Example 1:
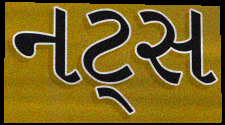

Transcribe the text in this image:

નટ્સ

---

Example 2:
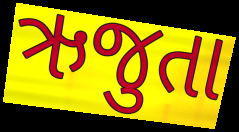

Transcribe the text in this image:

ઋજુતા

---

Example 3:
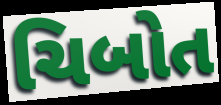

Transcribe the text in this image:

ચિબોત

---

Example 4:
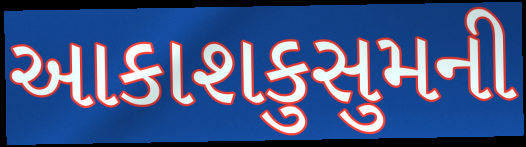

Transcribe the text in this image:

આકાશકુસુમની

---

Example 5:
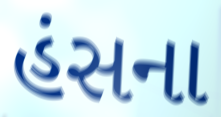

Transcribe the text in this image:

હંસના